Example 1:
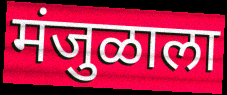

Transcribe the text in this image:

मंजुळाला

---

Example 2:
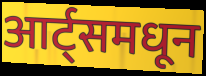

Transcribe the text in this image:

आर्ट्समधून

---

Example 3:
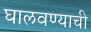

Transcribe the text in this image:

घालवण्याची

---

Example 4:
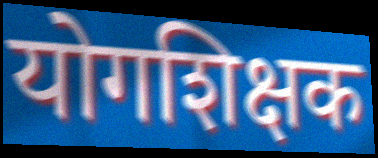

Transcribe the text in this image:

योगशिक्षक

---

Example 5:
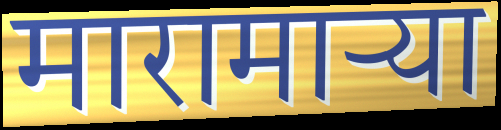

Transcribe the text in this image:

मारामाऱ्या